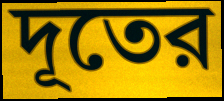
দূতের